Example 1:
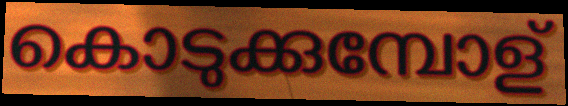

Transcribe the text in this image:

കൊടുക്കുമ്പോള്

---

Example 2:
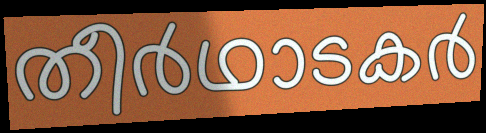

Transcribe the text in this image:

തീർഥാടകർ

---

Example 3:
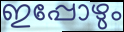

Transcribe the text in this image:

ഇപ്പോഴും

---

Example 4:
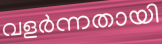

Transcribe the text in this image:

വളർന്നതായി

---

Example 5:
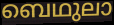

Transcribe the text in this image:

ബെഥുലാ